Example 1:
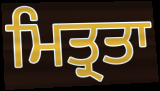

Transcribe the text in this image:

ਮਿਤ੍ਰਤਾ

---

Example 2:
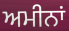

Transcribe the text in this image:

ਅਮੀਨਾਂ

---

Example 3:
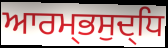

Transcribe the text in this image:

ਆਰਮ੍ਭਸੁਦ੍ਧਿ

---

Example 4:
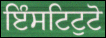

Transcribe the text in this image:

ਇੰਸਟਿਟੁਟੋ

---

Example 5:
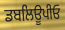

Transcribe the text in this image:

ਡਬਲਿਊਪੀਓ